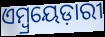
ଏମ୍ୱ୍ରୟେଡ଼ାରୀ